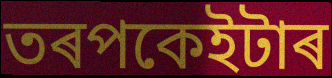
তৰপকেইটাৰ